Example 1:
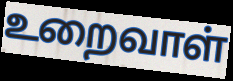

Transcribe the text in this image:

உறைவாள்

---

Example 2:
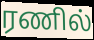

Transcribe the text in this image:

ரணில்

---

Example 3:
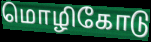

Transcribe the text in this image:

மொழிகோடு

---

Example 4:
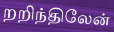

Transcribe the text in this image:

றறிந்திலேன்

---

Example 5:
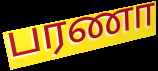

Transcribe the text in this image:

பரணா